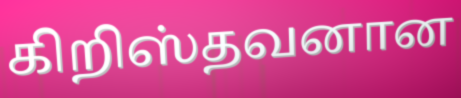
கிறிஸ்தவனான